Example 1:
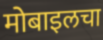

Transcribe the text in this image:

मोबाइलचा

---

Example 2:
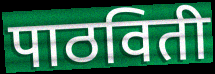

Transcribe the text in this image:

पाठविती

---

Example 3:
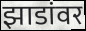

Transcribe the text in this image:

झाडांवर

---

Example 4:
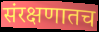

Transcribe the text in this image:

संरक्षणातच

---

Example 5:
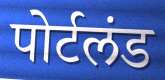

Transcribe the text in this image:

पोर्टलंड